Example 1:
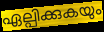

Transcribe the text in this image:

ഏല്പിക്കുകയും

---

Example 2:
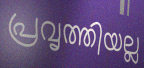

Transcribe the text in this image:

പ്രവൃത്തിയല്ല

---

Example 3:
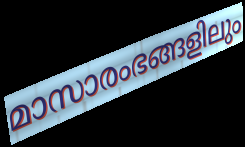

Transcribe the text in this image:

മാസാരംഭങ്ങളിലും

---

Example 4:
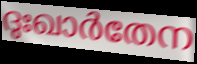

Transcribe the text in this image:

ദുഃഖാർതേന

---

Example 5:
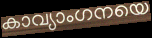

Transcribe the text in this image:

കാവ്യാംഗനയെ